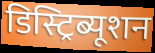
डिस्ट्रिब्यूशन